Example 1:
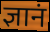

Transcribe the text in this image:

ज्ञानं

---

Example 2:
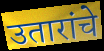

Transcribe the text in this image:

उतारांचे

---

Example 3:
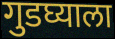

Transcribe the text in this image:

गुडघ्याला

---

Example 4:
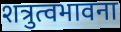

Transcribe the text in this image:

शत्रुत्वभावना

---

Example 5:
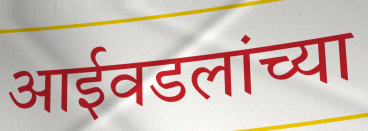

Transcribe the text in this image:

आईवडलांच्या